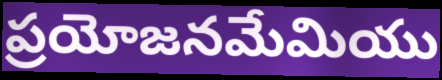
ప్రయోజనమేమియు